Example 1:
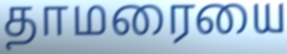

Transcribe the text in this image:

தாமரையை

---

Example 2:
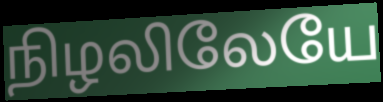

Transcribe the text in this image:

நிழலிலேயே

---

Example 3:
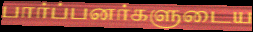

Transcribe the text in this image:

பார்ப்பனர்களுடைய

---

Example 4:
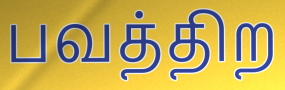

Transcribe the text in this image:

பவத்திற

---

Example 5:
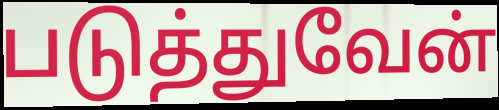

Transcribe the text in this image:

படுத்துவேன்